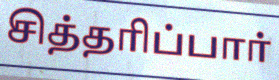
சித்தரிப்பார்